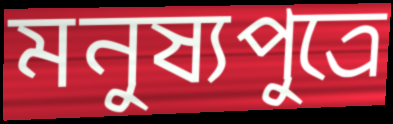
মনুষ্যপুত্রে